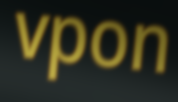
vpon